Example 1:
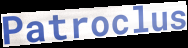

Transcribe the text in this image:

Patroclus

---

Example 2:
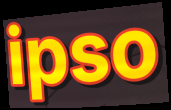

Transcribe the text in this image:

ipso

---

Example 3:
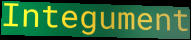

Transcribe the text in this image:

Integument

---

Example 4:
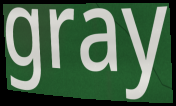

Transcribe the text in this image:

gray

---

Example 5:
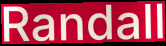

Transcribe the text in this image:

Randall